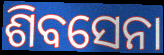
ଶିବସେନା